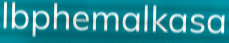
lbphemalkasa